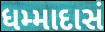
ધમ્માદાસં